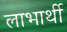
लाभार्थी